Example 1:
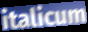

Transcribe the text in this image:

italicum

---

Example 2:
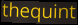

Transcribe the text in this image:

thequint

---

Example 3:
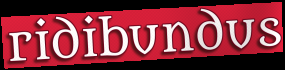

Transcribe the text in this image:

ridibundus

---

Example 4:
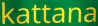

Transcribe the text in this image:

kattana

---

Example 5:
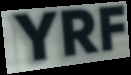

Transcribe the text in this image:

YRF